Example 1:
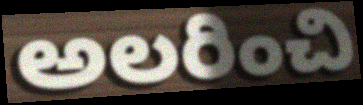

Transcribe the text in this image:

అలరించి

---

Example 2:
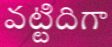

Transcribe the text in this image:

వట్టిదిగా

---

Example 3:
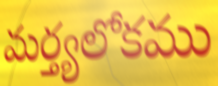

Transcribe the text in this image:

మర్త్యలోకము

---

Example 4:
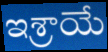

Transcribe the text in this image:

ఇశ్రాయే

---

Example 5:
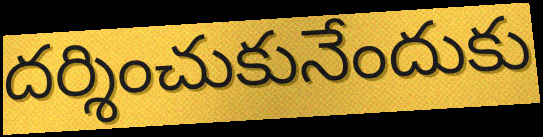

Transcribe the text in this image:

దర్శించుకునేందుకు